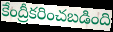
కేంద్రీకరించబడింది